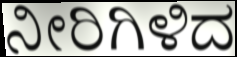
ನೀರಿಗಿಳಿದ